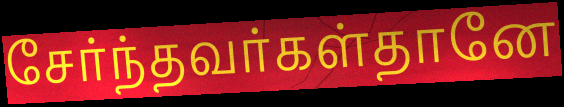
சேர்ந்தவர்கள்தானே